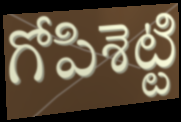
గోపిశెట్టి